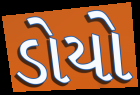
ડોયો